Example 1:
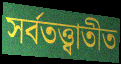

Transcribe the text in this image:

সর্বতত্ত্বাতীত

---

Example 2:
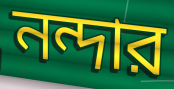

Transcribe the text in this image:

নন্দার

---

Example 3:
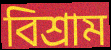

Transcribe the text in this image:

বিশ্রাম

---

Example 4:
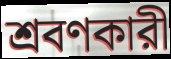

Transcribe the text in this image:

শ্রবণকারী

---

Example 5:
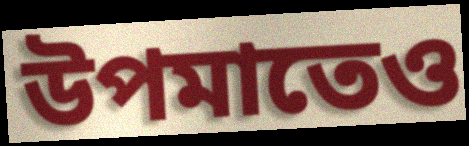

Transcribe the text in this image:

উপমাতেও